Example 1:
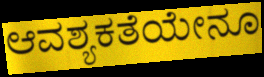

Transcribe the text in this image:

ಆವಶ್ಯಕತೆಯೇನೂ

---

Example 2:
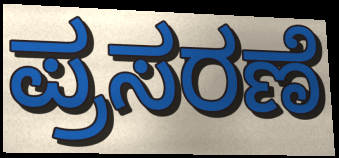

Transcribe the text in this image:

ಪ್ರಸರಣೆ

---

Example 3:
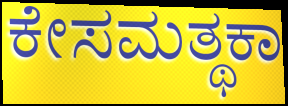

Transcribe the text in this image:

ಕೇಸಮತ್ಥಕಾ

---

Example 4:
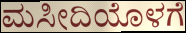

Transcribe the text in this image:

ಮಸೀದಿಯೊಳಗೆ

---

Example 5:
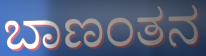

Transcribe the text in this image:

ಬಾಣಂತನ